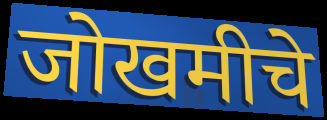
जोखमीचे